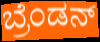
ಬ್ರೆಂಡನ್